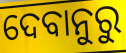
ଦେବାନୁରୁ